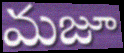
మజూ